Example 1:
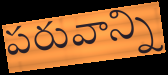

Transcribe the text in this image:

పరువాన్ని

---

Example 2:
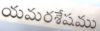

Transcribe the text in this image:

యమరశేషము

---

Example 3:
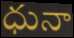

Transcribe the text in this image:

ధునా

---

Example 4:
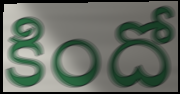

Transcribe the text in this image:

కిందో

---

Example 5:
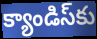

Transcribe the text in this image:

క్యాండిస్‌కు